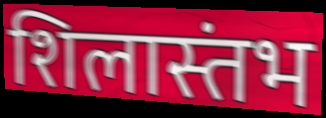
शिलास्तंभ